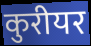
कुरीयर